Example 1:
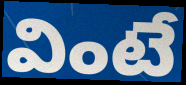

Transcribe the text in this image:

వింటే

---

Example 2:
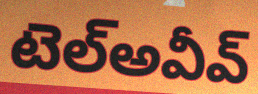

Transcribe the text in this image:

టెల్అవీవ్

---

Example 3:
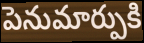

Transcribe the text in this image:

పెనుమార్పుకి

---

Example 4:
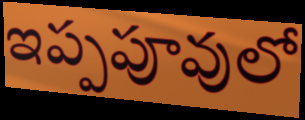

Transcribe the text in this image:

ఇప్పపూవులో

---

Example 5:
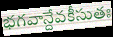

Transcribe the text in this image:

భగవాన్దేవకీసుతః